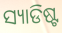
ସ୍ୟାଡିଷ୍ଟ